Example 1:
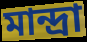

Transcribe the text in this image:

মান্দ্রা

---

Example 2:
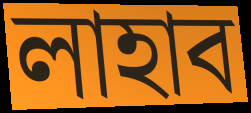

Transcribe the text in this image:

লাহাব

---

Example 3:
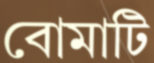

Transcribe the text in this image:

বোমাটি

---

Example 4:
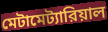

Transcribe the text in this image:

মেটামেট্যারিয়াল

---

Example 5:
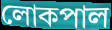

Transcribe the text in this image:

লোকপাল